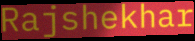
Rajshekhar